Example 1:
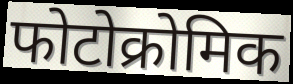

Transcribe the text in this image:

फोटोक्रोमिक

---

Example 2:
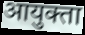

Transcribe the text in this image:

आयुक्ता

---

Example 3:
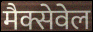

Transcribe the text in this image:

मैक्सेवेल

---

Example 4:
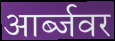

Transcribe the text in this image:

आर्ब्जवर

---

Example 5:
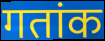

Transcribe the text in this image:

गतांक